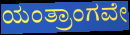
ಯಂತ್ರಾಂಗವೇ